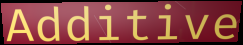
Additive